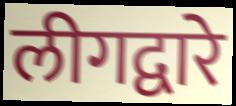
लीगद्वारे